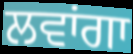
ਲਵਾਂਗਾ